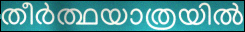
തീർത്ഥയാത്രയിൽ